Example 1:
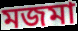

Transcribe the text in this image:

মজমা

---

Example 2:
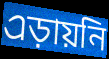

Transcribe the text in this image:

এড়ায়নি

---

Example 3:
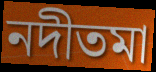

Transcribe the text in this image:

নদীতমা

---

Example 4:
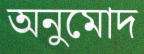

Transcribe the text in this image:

অনুমোদ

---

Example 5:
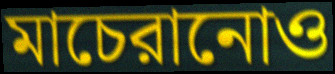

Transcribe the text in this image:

মাচেরানোও